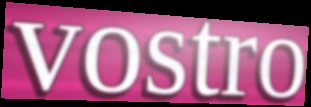
vostro